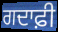
ਗਦਾਫ਼ੀ